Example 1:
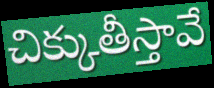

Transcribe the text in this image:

చిక్కుతీస్తావే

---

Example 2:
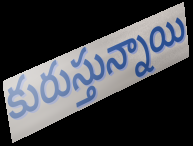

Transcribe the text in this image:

కురుస్తున్నాయి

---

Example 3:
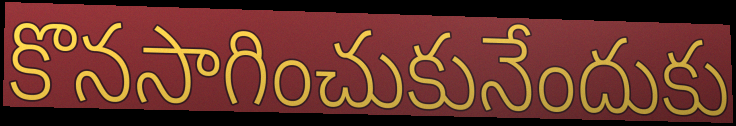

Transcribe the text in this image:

కొనసాగించుకునేందుకు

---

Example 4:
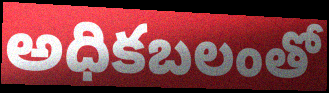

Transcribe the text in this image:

అధికబలంతో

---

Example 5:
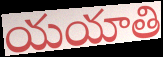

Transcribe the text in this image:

యయాతి